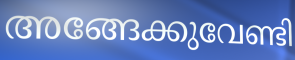
അങ്ങേക്കുവേണ്ടി